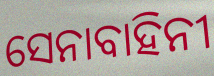
ସେନାବାହିନୀ